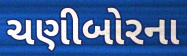
ચણીબોરના